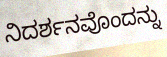
ನಿದರ್ಶನವೊಂದನ್ನು